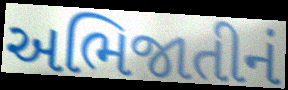
અભિજાતીનં